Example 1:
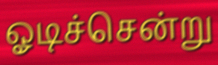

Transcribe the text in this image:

ஓடிச்சென்று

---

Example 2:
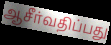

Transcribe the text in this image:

ஆசீர்வதிப்பது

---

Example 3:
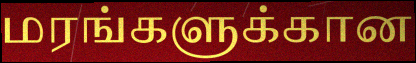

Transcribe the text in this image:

மரங்களுக்கான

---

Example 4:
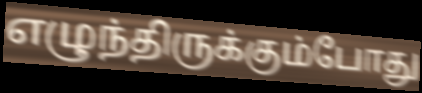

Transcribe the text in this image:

எழுந்திருக்கும்போது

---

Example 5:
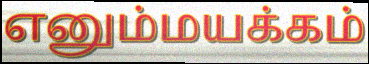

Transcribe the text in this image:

எனும்மயக்கம்